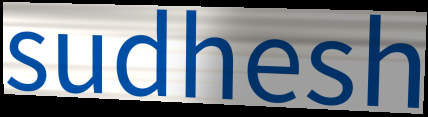
sudhesh